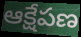
ఆక్షేపణ